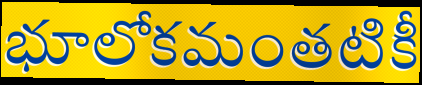
భూలోకమంతటికీ